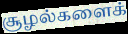
சூழல்களைக்